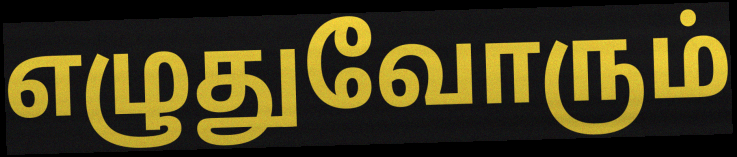
எழுதுவோரும்